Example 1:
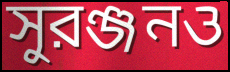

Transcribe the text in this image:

সুরঞ্জনও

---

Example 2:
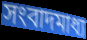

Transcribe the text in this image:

সংবাদমাধ্য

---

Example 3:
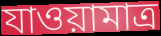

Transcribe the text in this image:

যাওয়ামাত্র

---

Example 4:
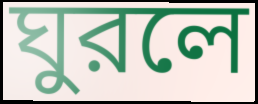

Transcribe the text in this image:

ঘুরলে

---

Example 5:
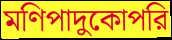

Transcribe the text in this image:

মণিপাদুকোপরি